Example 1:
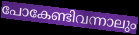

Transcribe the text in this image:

പോകേണ്ടിവന്നാലും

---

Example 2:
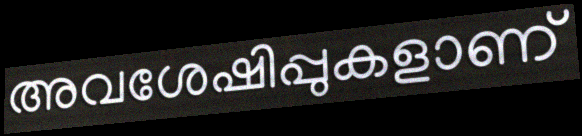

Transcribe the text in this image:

അവശേഷിപ്പുകളാണ്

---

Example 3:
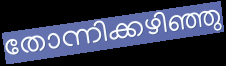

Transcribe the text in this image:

തോന്നിക്കഴിഞ്ഞു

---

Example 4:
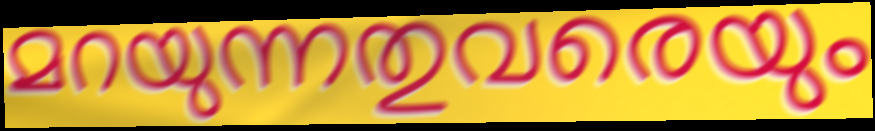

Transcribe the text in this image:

മറയുന്നതുവരെയും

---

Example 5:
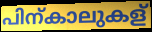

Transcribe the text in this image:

പിന്കാലുകള്